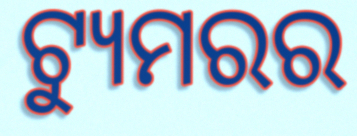
ଟ୍ୟୁମରର